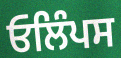
ਓਲਿੰਪਸ